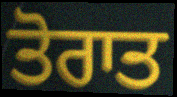
ਤੋਰਾਤ